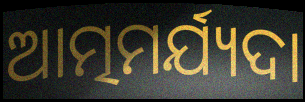
ଆତ୍ମମର୍ଯ୍ୟଦା